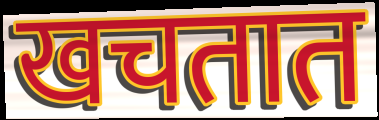
खचतात